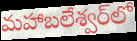
మహాబలేశ్వర్‌లో